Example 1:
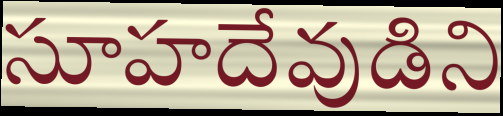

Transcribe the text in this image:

సూహదేవుడిని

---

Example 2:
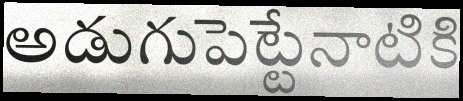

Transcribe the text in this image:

అడుగుపెట్టేనాటికి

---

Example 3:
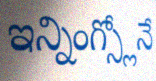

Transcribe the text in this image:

ఇన్నింగ్స్లోనే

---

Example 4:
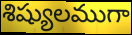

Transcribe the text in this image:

శిష్యులముగా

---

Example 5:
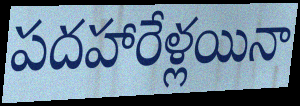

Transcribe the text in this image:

పదహారేళ్లయినా